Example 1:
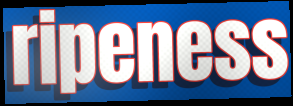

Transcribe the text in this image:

ripeness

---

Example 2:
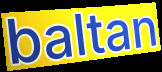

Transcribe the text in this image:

baltan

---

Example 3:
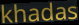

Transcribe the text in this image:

khadas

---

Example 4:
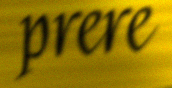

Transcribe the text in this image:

prere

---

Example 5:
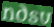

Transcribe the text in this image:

ndsu